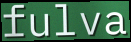
fulva